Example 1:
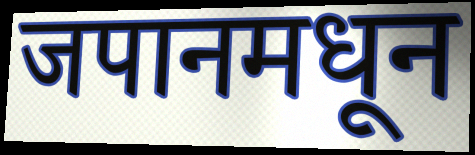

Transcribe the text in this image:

जपानमधून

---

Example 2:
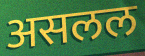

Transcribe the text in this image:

असलल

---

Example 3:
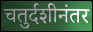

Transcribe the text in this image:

चतुर्दशीनंतर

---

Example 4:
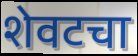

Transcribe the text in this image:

शेवटचा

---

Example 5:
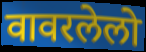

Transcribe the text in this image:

वावरलेलो